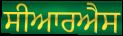
ਸੀਆਰਐਸ